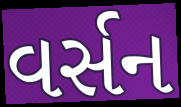
વર્સન